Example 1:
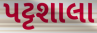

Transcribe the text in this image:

પટ્ટશાલા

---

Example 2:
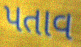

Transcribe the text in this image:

પતાવ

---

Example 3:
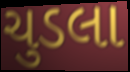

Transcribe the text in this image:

ચુડલા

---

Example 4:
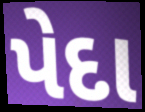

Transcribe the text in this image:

પેદા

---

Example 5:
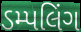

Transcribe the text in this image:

ડમ્પલિંગ